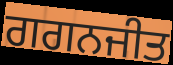
ਗਗਨਜੀਤ